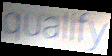
qualify